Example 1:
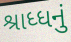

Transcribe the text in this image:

શ્રાધ્ધનું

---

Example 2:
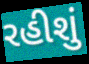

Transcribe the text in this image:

રહીશું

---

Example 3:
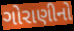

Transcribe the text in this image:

ગોરાણીનો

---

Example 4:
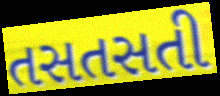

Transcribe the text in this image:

તસતસતી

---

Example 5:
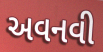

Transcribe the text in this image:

અવનવી